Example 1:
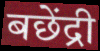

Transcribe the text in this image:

बछेंद्री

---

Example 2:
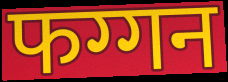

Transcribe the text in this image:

फग्‍गन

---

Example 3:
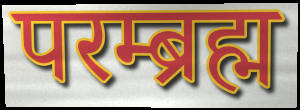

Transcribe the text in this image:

परम्ब्रह्म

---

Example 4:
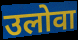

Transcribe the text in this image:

उलोवा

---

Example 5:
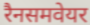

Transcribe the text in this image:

रैनसमवेयर